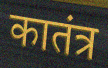
कातंत्र